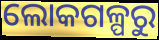
ଲୋକଗଳ୍ପରୁ